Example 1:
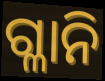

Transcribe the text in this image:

ଗ୍ଳାନି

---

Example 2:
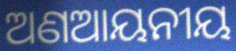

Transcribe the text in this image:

ଅଣଆୟନୀୟ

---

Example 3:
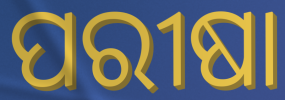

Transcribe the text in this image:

ପରୀଷା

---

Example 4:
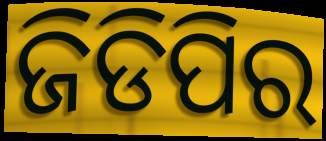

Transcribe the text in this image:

ଜିଡିପିର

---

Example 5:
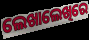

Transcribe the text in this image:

ଲେଖାଲେଖିରେ